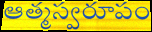
ఆత్మస్వరూపం